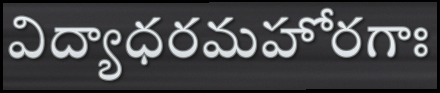
విద్యాధరమహోరగాః